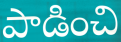
పాడించి